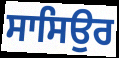
ਸਾਸਿਉਰ